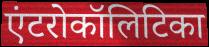
एंटरोकॉलिटिका